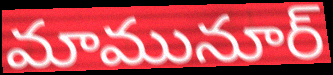
మామునూర్